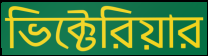
ভিক্টেরিয়ার